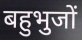
बहुभुजों